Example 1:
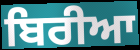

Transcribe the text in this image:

ਬਿਰੀਆ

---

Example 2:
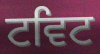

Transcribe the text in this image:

ਟਵਿਟ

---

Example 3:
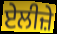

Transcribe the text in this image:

ਏਲੀਜ਼ੇ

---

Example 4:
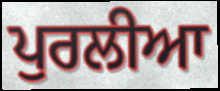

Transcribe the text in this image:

ਪੁਰਲੀਆ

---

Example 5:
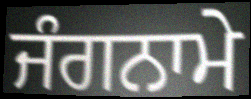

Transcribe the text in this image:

ਜੰਗਨਾਮੇ